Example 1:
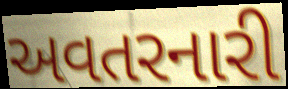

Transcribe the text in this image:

અવતરનારી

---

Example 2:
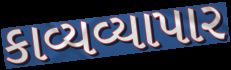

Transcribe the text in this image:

કાવ્યવ્યાપાર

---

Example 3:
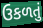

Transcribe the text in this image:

ઉકળતું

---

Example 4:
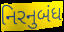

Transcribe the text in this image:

નિરનુબંધ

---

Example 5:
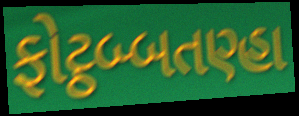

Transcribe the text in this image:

ફોટ્ઠબ્બતણ્હા